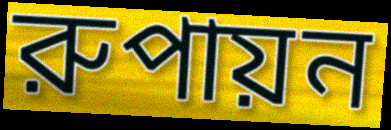
ৰুপায়ন